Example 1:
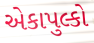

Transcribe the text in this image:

એકાપુલ્કો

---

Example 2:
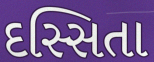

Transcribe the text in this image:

દસ્સિતા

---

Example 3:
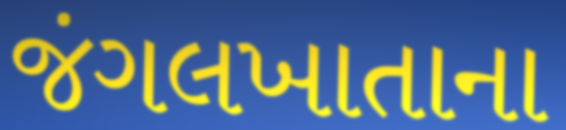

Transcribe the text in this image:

જંગલખાતાના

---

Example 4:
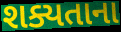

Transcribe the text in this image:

શક્યતાના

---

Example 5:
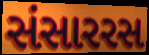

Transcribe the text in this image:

સંસારરસ